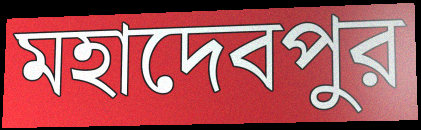
মহাদেবপুর